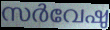
സർവേഷു